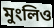
মুংলিও